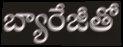
బ్యారేజీతో